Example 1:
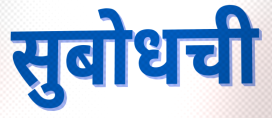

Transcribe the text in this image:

सुबोधची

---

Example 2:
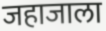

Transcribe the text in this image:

जहाजाला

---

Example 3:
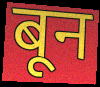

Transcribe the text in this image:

बून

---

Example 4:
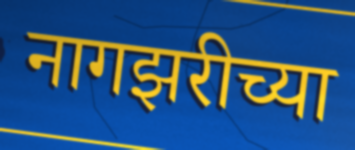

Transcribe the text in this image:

नागझरीच्या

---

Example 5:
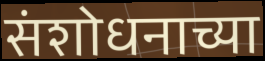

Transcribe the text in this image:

संशोधनाच्या